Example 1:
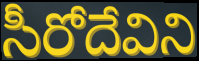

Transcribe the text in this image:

సీరోదేవిని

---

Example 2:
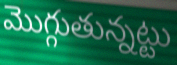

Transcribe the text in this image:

మొగ్గుతున్నట్టు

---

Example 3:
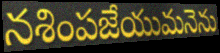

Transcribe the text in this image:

నశింపజేయుమనెను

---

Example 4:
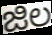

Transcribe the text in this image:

జిల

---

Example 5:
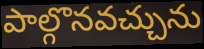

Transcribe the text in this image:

పాల్గొనవచ్చును